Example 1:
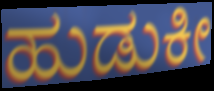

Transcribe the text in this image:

ಹುಡುಕೀ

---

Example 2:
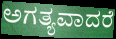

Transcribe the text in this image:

ಅಗತ್ಯವಾದರೆ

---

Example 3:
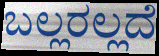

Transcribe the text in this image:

ಬಲ್ಲರಲ್ಲದೆ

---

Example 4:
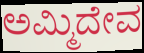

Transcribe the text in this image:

ಅಮ್ಮಿದೇವ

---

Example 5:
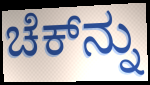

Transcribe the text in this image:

ಚೆಕ್‌ನ್ನು